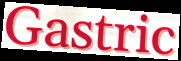
Gastric